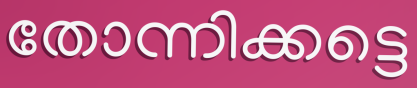
തോന്നിക്കട്ടെ